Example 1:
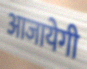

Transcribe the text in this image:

आजायेगी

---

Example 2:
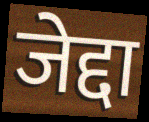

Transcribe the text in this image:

जेद्दा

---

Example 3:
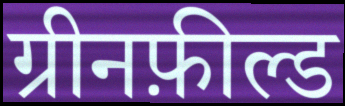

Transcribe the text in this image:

ग्रीनफ़ील्ड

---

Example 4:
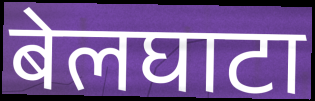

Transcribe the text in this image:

बेलघाटा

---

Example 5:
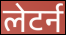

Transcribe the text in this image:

लेटर्न